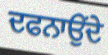
ਦਫਨਾਉਂਦੇ